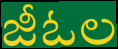
జీఓల